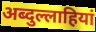
अब्दुल्लाहियां